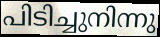
പിടിച്ചുനിന്നു